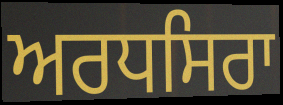
ਅਰਧਸਿਰਾ